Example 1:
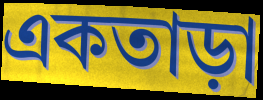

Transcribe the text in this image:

একতাড়া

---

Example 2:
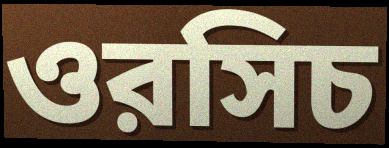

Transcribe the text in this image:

ওরসিচ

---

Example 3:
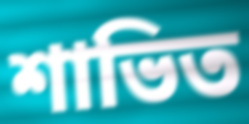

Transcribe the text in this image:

শাভিত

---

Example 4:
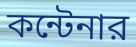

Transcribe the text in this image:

কন্টেনার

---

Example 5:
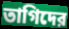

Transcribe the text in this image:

তাগিদের